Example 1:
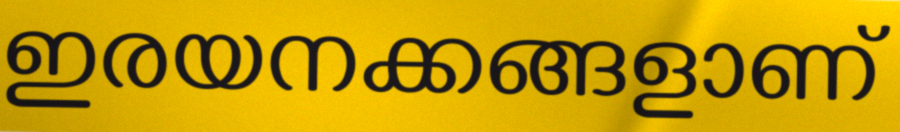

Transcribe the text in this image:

ഇരയനക്കങ്ങളാണ്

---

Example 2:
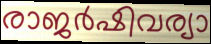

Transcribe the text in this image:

രാജർഷിവര്യാ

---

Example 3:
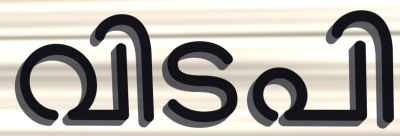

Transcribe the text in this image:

വിടപി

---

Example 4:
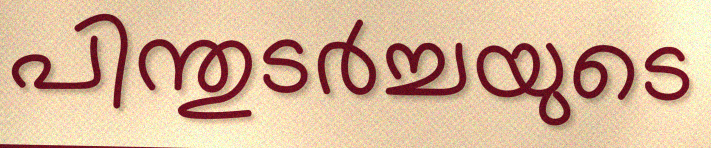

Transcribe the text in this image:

പിന്തുടർച്ചയുടെ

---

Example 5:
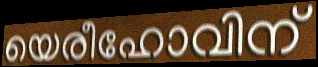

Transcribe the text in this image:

യെരീഹോവിന്